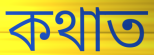
কথাত